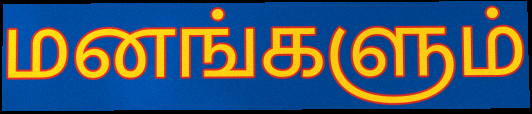
மனங்களும்